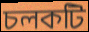
চলকটি